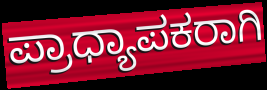
ಪ್ರಾಧ್ಯಾಪಕರಾಗಿ